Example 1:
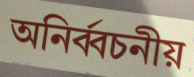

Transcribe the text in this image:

অনির্ব্বচনীয়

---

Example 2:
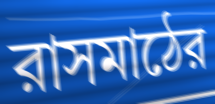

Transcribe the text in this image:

রাসমাঠের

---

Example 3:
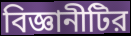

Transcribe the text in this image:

বিজ্ঞানীটির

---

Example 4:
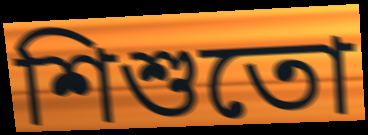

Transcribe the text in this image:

শিশুতো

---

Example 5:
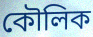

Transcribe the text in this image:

কৌলিক